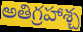
అతిగ్రహాశ్చ